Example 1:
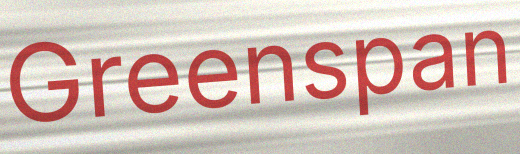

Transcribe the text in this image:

Greenspan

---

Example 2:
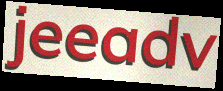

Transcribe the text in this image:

jeeadv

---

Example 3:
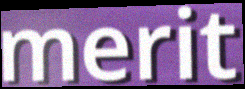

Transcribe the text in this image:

merit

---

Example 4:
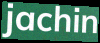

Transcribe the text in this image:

jachin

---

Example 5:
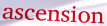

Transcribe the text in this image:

ascension